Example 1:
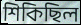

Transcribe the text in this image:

শিকিছিল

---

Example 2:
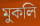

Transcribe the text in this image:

মুকলি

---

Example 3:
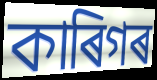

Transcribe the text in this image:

কাৰিগৰ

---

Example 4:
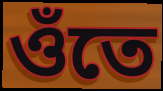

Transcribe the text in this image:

ওঁতে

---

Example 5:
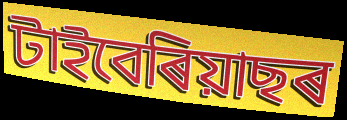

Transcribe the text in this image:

টাইবেৰিয়াছৰ